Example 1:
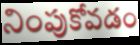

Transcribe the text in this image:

నింపుకోవడం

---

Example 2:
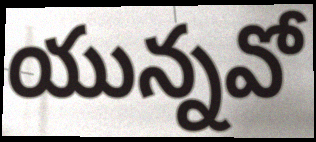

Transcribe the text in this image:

యున్నవో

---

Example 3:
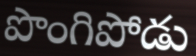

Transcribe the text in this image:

పొంగిపోడు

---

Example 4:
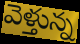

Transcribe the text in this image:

వెళ్తున్న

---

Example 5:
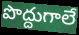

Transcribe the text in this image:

పొద్దుగాలే